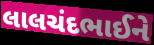
લાલચંદભાઈને